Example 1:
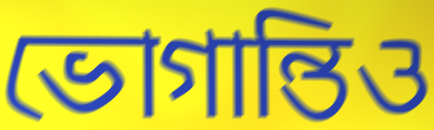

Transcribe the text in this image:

ভোগান্তিও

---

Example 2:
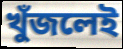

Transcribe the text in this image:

খুঁজলেই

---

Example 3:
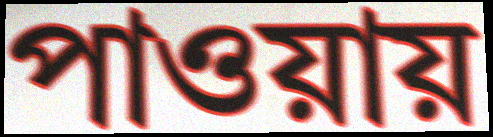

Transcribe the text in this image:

পাওয়ায়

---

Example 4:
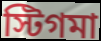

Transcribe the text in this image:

স্টিগমা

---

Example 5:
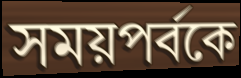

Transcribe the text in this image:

সময়পর্বকে